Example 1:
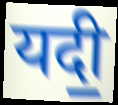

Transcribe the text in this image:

यदी॒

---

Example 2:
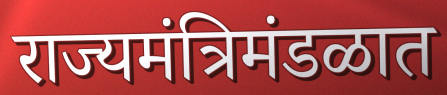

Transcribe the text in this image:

राज्यमंत्रिमंडळात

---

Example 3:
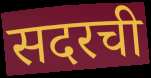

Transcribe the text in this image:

सदरची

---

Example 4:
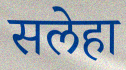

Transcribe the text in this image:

सलेहा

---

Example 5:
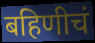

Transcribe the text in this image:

बहिणीचं